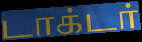
டாக்டர்